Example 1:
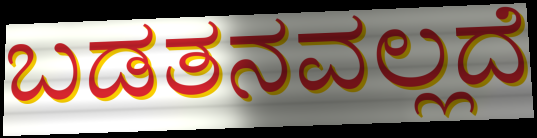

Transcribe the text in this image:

ಬಡತನವಲ್ಲದೆ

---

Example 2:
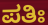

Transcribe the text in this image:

ಪತಿಃ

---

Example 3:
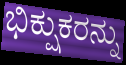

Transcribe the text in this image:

ಭಿಕ್ಷುಕರನ್ನು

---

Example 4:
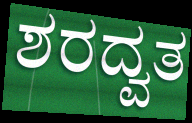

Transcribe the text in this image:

ಶರದ್ವತ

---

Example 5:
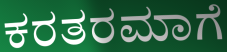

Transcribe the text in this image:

ಕರತರಮಾಗೆ